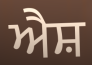
ਐਸ਼